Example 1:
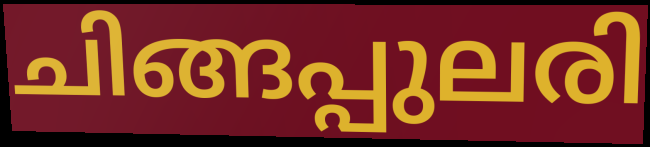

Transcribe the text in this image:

ചിങ്ങപ്പുലരി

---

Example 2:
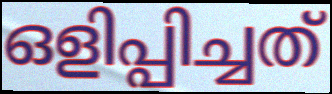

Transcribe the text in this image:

ഒളിപ്പിച്ചത്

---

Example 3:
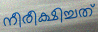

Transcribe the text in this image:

നീരീക്ഷിച്ചത്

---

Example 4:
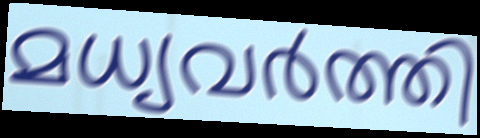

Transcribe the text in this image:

മധ്യവർത്തി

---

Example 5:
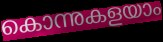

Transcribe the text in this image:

കൊന്നുകളയാം